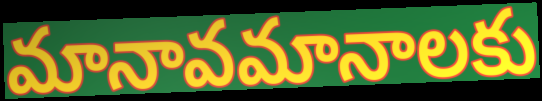
మానావమానాలకు